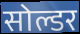
सोल्डर